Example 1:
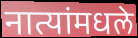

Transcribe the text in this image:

नात्यांमधले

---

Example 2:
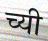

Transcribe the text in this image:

च्यी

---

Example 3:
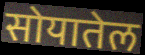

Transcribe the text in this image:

सोयातेल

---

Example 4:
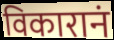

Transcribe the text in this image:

विकारानं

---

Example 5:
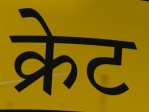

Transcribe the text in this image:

क्रेट